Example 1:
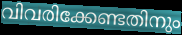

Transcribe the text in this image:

വിവരിക്കേണ്ടതിനും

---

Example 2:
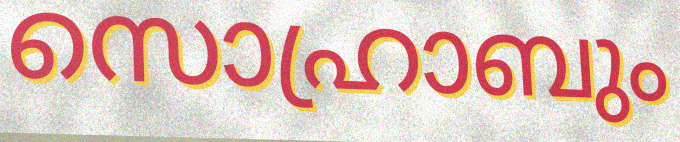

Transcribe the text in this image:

സൊഹ്രാബും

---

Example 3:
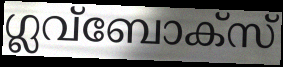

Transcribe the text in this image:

ഗ്ലവ്ബോക്സ്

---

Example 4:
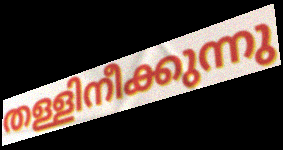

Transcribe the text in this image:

തള്ളിനീക്കുന്നു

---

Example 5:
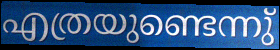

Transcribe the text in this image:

എത്രയുണ്ടെന്നു്